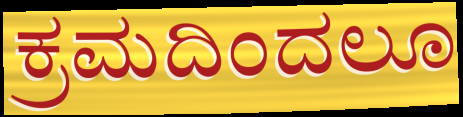
ಕ್ರಮದಿಂದಲೂ